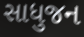
સાધુજન